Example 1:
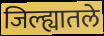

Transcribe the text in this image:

जिल्ह्यातले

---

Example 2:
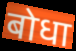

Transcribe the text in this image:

बोधा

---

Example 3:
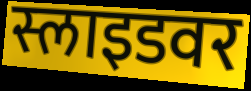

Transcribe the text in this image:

स्‍लाइडवर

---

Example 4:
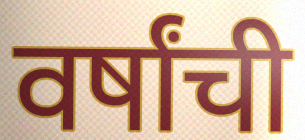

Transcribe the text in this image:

वर्षांची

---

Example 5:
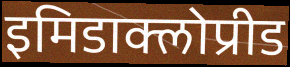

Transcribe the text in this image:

इमिडाक्लोप्रीड